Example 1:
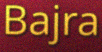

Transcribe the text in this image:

Bajra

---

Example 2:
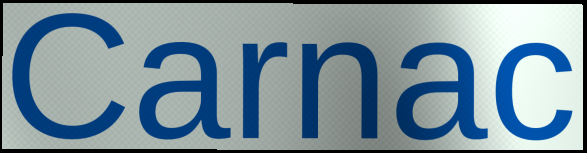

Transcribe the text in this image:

Carnac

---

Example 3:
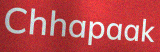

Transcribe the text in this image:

Chhapaak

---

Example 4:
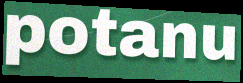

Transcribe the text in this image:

potanu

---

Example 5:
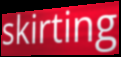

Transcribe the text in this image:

skirting